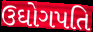
ઉઘોગપતિ